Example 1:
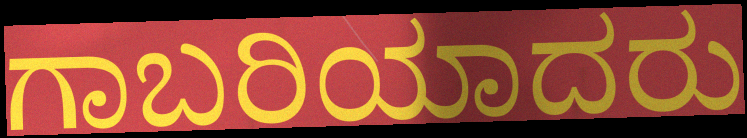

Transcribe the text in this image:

ಗಾಬರಿಯಾದರು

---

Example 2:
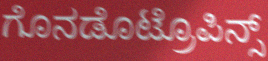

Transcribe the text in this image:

ಗೊನಡೊಟ್ರೊಪಿನ್ಸ್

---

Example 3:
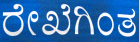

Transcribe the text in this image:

ರೇಖೆಗಿಂತ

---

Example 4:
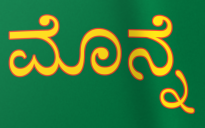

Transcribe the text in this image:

ಮೊನ್ನೆ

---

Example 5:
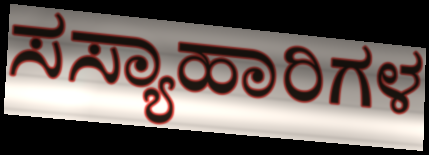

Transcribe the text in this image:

ಸಸ್ಯಾಹಾರಿಗಳ